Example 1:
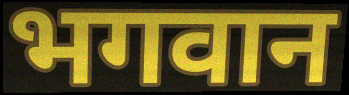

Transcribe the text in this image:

भगवान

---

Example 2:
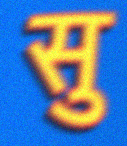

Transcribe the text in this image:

सु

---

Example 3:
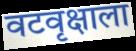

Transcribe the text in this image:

वटवृक्षाला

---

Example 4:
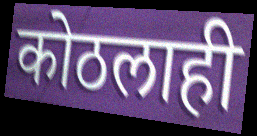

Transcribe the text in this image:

कोठलाही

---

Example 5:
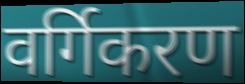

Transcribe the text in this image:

वर्गिकरण